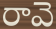
రావె